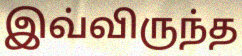
இவ்விருந்த